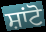
ਸ਼ਾਂਟੋ